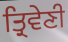
ਤ੍ਰਿਵੇਣੀ